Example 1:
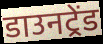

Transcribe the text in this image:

डाउनट्रेंड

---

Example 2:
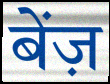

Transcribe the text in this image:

बेंज़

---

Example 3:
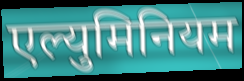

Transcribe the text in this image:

एल्युमिनियम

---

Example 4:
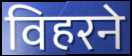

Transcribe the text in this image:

विहरने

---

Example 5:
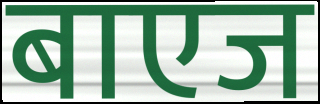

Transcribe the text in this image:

बाएज